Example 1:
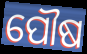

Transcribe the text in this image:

ପୌଷ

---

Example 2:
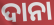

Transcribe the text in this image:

ଦାନା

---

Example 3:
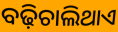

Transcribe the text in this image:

ବଢ଼ିଚାଲିଥାଏ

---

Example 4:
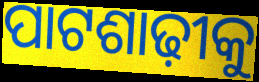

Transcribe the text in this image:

ପାଟଶାଢ଼ୀକୁ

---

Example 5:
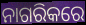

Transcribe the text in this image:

ନାଗରିକରେ